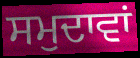
ਸਮੁਦਾਵਾਂ